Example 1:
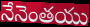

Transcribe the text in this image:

నేనెంతయు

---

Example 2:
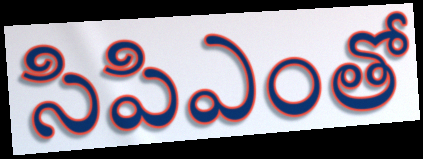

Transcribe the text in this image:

సిపిఎంతో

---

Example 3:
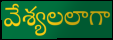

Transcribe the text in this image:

వేశ్యలలాగా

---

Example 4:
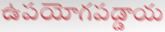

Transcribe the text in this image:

ఉపయోగపడ్డాయ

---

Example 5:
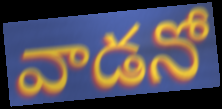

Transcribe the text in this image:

వాడనో